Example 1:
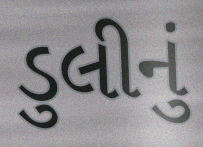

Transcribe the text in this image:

ડુલીનું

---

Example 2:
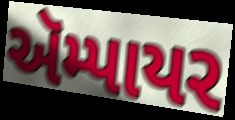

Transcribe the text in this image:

ઍમ્પાયર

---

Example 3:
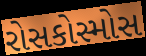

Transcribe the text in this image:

રોસકોસ્મોસ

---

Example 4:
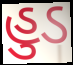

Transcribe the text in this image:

હુડ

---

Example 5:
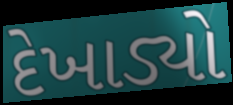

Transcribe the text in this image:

દેખાડ્યો